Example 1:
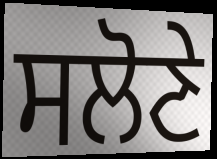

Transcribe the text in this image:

ਸਲੋਣੇ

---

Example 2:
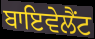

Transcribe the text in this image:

ਬਾਇਵੇਲੈਂਟ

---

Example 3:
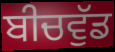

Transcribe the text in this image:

ਬੀਚਵੁੱਡ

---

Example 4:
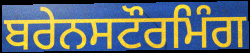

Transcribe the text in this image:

ਬਰੇਨਸਟੌਰਮਿੰਗ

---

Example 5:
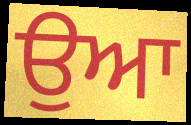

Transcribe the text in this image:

ਉਆ